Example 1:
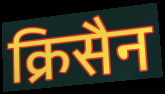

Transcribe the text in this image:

क्रिसैन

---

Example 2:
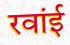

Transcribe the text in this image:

रवांई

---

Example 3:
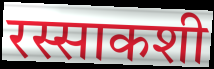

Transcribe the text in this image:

रस्साकशी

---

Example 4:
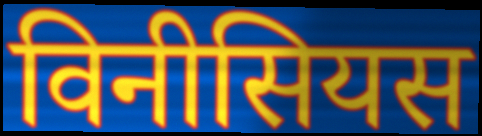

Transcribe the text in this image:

विनीसियस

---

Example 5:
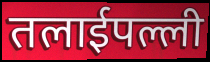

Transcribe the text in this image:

तलाईपल्ली